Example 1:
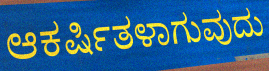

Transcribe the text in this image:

ಆಕರ್ಷಿತಳಾಗುವುದು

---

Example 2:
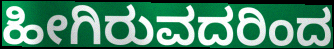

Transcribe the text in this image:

ಹೀಗಿರುವದರಿಂದ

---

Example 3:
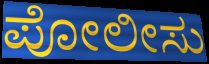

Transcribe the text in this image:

ಪೋಲೀಸು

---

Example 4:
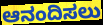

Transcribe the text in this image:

ಆನಂದಿಸಲು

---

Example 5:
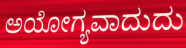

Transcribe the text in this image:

ಅಯೋಗ್ಯವಾದುದು